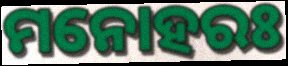
ମନୋହରଃ